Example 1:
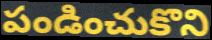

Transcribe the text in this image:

పండించుకొని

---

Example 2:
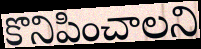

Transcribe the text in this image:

కొనిపించాలని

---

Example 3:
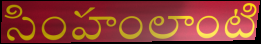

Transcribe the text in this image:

సింహంలాంటి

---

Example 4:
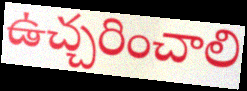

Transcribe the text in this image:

ఉచ్చరించాలి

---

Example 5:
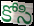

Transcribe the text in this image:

కోసి